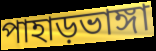
পাহাড়ভাঙ্গা